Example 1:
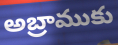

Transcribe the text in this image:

అబ్రాముకు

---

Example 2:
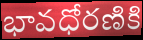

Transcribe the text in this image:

భావధోరణికి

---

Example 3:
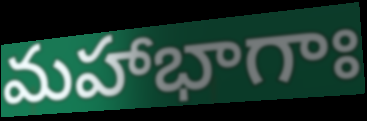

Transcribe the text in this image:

మహాభాగాః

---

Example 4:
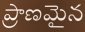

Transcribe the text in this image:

ప్రాణమైన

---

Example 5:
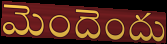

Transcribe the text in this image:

మెందెందు